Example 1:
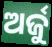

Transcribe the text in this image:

ଅର୍ଜୁ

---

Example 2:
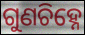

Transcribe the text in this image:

ଗୁଣଚିହ୍ନେ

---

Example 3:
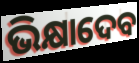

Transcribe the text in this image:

ଭିକ୍ଷାଦେବ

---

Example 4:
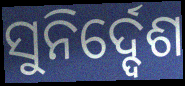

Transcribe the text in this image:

ସୁନିର୍ଦ୍ଦେଶ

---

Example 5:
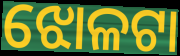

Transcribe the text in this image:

ଝୋଳଟା